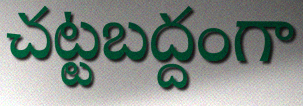
చట్టబద్దంగా